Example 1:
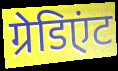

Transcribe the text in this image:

ग्रेडिएंट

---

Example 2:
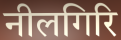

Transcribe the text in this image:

नीलगिरि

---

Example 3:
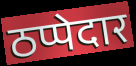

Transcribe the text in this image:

ठप्पेदार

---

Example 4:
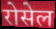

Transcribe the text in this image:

रोसेल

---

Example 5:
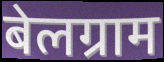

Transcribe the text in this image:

बेलग्राम